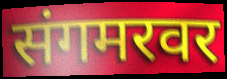
संगमरवर